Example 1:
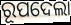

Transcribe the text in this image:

ରୂପଦେଲା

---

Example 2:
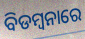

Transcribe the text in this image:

ବିଡମ୍ବନାରେ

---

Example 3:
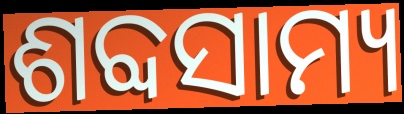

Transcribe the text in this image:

ଶବ୍ଦସାମ୍ୟ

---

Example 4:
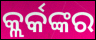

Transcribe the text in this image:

କ୍ଲର୍କଙ୍କର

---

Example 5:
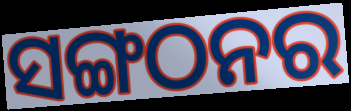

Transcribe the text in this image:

ସଙ୍ଗଠନର